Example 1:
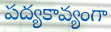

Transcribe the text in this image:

పద్యకావ్యంగా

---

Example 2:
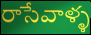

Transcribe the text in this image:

రాసేవాళ్ళ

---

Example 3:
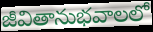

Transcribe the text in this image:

జీవితానుభవాలలో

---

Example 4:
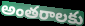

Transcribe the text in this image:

అంతరాలకు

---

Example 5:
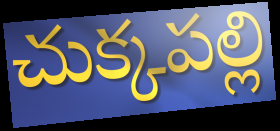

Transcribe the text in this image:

చుక్కపల్లి